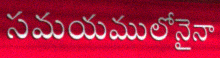
సమయములోనైనా